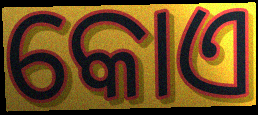
କୋଏ